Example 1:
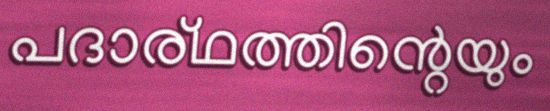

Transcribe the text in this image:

പദാര്ഥത്തിന്റെയും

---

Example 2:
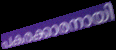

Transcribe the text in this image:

പകരക്കാരനായി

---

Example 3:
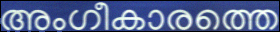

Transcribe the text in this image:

അംഗീകാരത്തെ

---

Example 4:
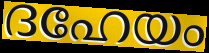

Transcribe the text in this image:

ദഹേയം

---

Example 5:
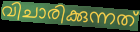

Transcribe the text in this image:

വിചാരിക്കുന്നത്